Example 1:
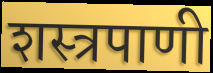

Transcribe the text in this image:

शस्त्रपाणी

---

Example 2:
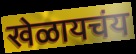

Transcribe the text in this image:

खेळायचंय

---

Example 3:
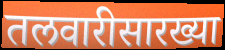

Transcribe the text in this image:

तलवारीसारख्या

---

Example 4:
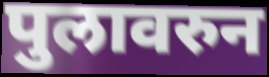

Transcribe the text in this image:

पुलावरुन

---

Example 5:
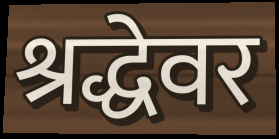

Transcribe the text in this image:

श्रद्धेवर